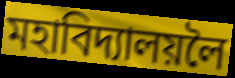
মহাবিদ্যালয়লৈ